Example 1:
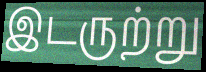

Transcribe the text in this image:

இடருற்று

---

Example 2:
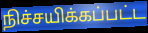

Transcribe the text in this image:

நிச்சயிக்கப்பட்ட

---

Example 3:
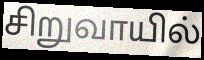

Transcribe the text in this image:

சிறுவாயில்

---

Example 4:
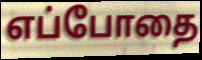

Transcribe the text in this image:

எப்போதை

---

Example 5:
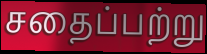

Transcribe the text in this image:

சதைப்பற்று